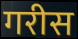
गरीस